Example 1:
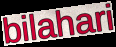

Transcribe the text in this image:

bilahari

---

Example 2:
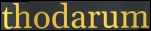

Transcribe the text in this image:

thodarum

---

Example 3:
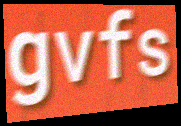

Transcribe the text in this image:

gvfs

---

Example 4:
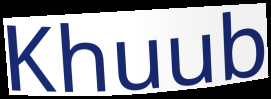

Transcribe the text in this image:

Khuub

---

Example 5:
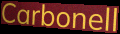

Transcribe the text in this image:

Carbonell